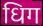
धिग